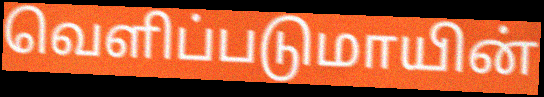
வெளிப்படுமாயின்